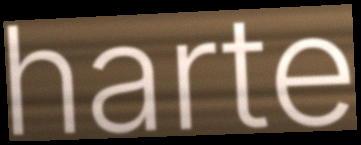
harte